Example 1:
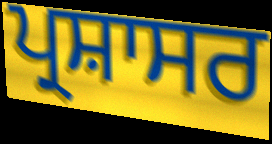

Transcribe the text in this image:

ਪ੍ਰਸ਼ਾਸਰ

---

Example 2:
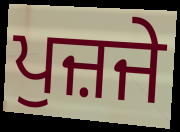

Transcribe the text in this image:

ਪੁਜ਼ਜੇ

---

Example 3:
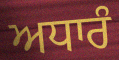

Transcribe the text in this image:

ਅਧਾਰੰ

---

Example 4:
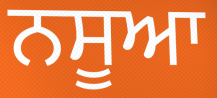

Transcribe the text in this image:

ਨਸੂਆ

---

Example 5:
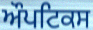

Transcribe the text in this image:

ਔਪਟਿਕਸ